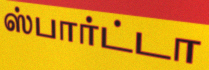
ஸ்பார்ட்டா